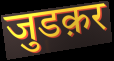
जुडक़र